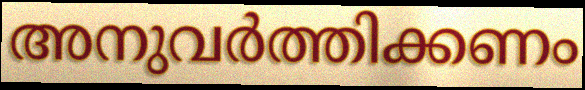
അനുവർത്തിക്കണം